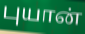
புயான்